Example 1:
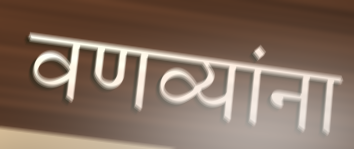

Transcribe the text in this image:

वणव्यांना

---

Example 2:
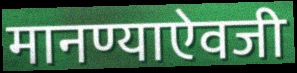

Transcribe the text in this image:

मानण्याऐवजी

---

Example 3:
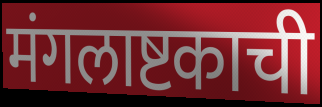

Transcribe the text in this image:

मंगलाष्टकाची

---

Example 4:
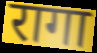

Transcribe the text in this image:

रागा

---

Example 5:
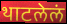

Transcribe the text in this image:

थाटलेलं